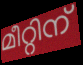
മീറ്റിന്